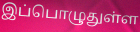
இப்பொழுதுள்ள